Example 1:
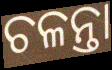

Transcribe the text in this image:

ଚଳନ୍ତା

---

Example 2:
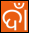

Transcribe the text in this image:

ଦାଁ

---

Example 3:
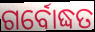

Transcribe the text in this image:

ଗର୍ବୋଦ୍ଧତ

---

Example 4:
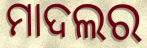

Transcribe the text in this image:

ମାଦଲର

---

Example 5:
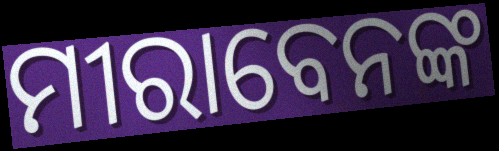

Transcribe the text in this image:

ମୀରାବେନଙ୍କ